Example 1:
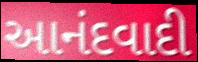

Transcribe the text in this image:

આનંદવાદી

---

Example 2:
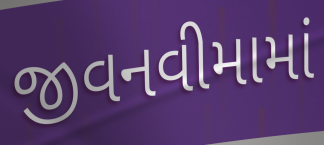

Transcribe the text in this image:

જીવનવીમામાં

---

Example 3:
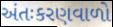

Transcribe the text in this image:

અંતઃકરણવાળો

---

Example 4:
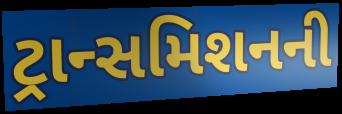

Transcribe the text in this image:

ટ્રાન્સમિશનની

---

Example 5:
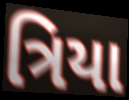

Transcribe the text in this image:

ત્રિયા